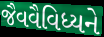
જૈવવૈવિધ્યને